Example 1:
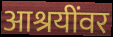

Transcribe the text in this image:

आश्रयींवर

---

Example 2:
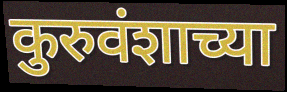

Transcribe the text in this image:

कुरुवंशाच्या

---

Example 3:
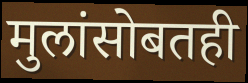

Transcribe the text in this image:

मुलांसोबतही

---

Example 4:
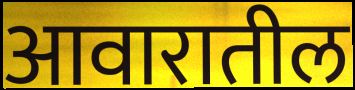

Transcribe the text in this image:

आवारातील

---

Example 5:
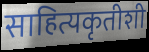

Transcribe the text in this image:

साहित्यकृतीशी